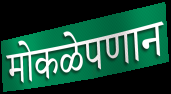
मोकळेपणान